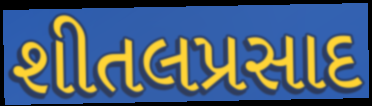
શીતલપ્રસાદ